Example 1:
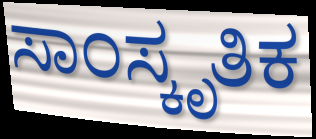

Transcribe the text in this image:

ಸಾಂಸ್ಕೃತಿಕ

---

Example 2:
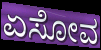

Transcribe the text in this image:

ಏಸೋವ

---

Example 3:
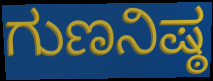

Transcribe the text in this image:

ಗುಣನಿಷ್ಠ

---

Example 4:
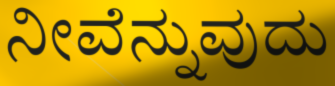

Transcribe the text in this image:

ನೀವೆನ್ನುವುದು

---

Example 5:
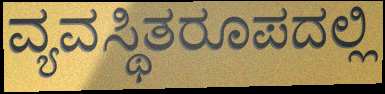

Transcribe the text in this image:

ವ್ಯವಸ್ಥಿತರೂಪದಲ್ಲಿ